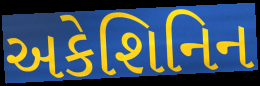
અકેશિનિન